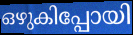
ഒഴുകിപ്പോയി